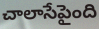
చాలాసేపైంది